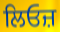
ਲਿਓਜ਼